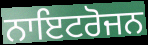
ਨਾਇਟਰੋਜਨ